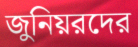
জুনিয়রদের